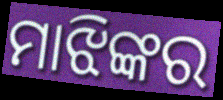
ମାଝିଙ୍କର